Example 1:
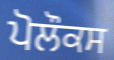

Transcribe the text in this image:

ਪੋਲੌਕਸ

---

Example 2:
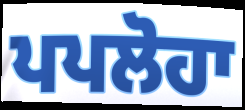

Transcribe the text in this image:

ਪਪਲੋਹਾ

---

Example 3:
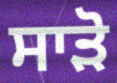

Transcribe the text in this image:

ਸਾੜੋ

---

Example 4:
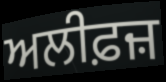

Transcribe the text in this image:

ਅਲੀਫ਼ਜ਼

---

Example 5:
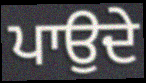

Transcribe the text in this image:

ਪਾਉਦੇ